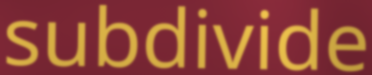
subdivide